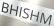
BHISHM